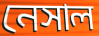
নেসাল